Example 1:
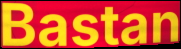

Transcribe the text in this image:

Bastan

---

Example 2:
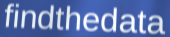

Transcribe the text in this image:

findthedata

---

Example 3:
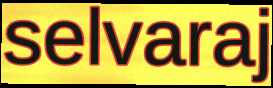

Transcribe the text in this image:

selvaraj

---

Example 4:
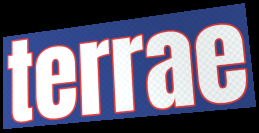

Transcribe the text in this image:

terrae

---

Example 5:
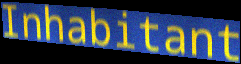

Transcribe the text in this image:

Inhabitant